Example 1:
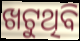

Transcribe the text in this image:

ଖଟୁଥିବି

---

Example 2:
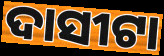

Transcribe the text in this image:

ଦାସୀଟା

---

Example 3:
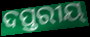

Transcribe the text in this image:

ଦପ୍ତରୀୟ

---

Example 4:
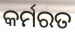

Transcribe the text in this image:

କର୍ମରତ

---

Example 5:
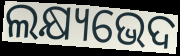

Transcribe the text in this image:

ଲକ୍ଷ୍ୟଭେଦ